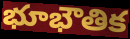
భూభౌతిక